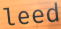
leed